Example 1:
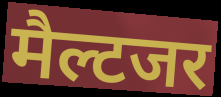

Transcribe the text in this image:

मैल्टजर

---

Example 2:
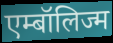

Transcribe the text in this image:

एम्बॉलिज्म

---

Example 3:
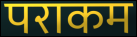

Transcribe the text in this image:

पराकम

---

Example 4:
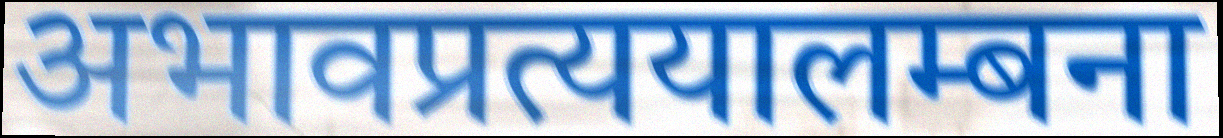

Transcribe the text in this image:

अभावप्रत्ययालम्बना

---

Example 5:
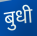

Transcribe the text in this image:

बुधी